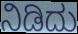
ನಿಡಿದು